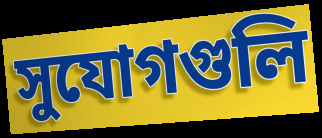
সুযোগগুলি